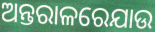
ଅନ୍ତରାଳରେଯାଉ